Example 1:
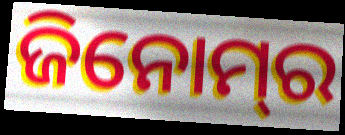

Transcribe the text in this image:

ଜିନୋମ୍‌ର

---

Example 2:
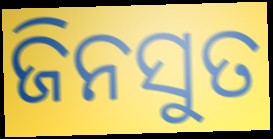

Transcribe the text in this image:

ଜିନସୁତ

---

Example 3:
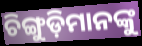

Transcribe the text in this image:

ଚିଙ୍ଗୁଡ଼ିମାନଙ୍କୁ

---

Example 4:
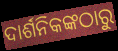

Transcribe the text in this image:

ଦାର୍ଶନିକଙ୍କଠାରୁ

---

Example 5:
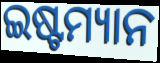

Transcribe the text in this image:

ଇଷ୍ଟମ୍ୟାନ